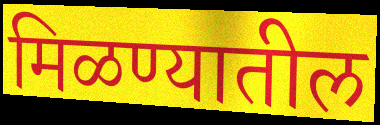
मिळण्यातील